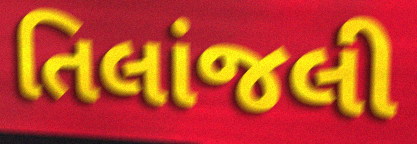
તિલાંજલી